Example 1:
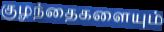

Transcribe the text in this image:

குழந்தைகளையும்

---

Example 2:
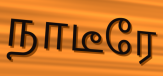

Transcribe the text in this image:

நாடீரே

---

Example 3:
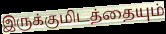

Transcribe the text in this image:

இருக்குமிடத்தையும்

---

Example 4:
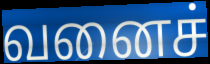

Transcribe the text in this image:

வனைச்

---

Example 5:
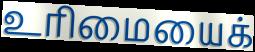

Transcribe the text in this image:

உரிமையைக்